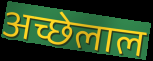
अच्छेलाल